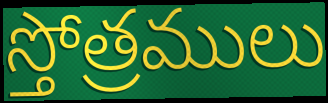
స్తోత్రములు